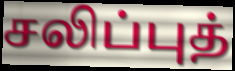
சலிப்புத்